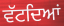
ਵੱਟਦਿਆਂ